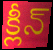
క్లీన్